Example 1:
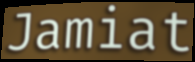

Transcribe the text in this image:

Jamiat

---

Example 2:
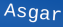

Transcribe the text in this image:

Asgar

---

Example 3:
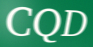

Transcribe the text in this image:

CQD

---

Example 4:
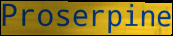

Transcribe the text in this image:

Proserpine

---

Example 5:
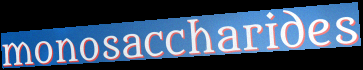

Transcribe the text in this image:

monosaccharides